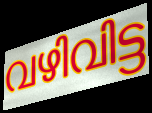
വഴിവിട്ട